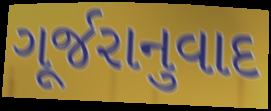
ગૂર્જરાનુવાદ